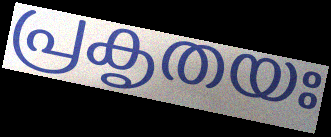
പ്രകൃതയഃ